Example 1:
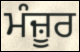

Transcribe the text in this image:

ਮੰਜ਼ੂਰ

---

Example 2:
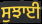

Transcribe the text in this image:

ਸੁਝਾਈ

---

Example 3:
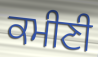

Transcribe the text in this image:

ਕਮੀਣੀ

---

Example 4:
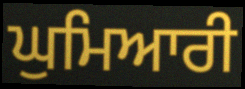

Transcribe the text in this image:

ਘੁਮਿਆਰੀ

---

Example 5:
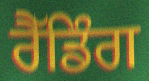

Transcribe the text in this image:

ਰੈੱਡਿੰਗ